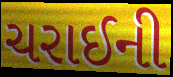
ચરાઈની